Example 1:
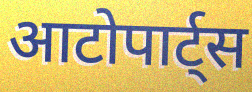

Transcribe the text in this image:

आटोपार्ट्स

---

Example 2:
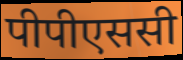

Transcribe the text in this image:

पीपीएससी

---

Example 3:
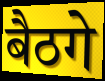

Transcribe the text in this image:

बैठगे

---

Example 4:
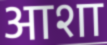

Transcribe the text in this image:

आशा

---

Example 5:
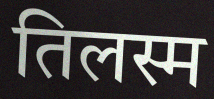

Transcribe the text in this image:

तिलस्म